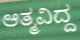
ಆತ್ಮವಿದ್ದ